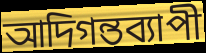
আদিগন্তব্যাপী